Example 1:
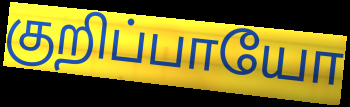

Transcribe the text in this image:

குறிப்பாயோ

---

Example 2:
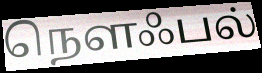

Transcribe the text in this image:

நௌஃபல்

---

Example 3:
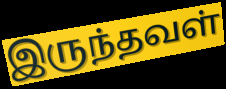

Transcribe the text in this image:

இருந்தவள்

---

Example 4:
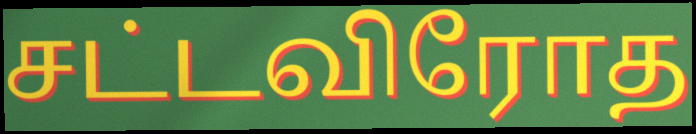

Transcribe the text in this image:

சட்டவிரோத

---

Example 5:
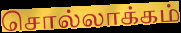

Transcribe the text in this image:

சொல்லாக்கம்